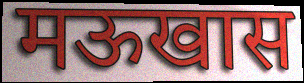
मऊखास